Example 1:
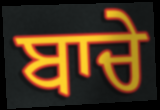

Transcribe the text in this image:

ਬਾਚੇ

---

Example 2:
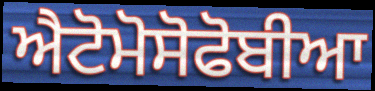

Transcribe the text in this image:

ਐਟੋਮੋਸੋਫੋਬੀਆ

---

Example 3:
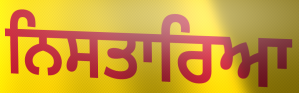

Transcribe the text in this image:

ਨਿਸਤਾਰਿਆ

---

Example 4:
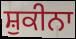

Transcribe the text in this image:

ਸ਼ੁਕੀਨਾ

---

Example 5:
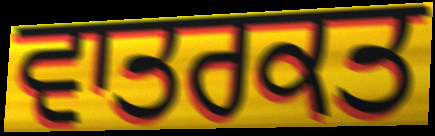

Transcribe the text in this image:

ਵਾਤਰਕਤ